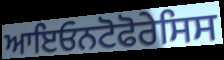
ਆਇਓਨਟੋਫੋਰੇਸਿਸ